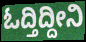
ಓದ್ತಿದ್ದೀನಿ